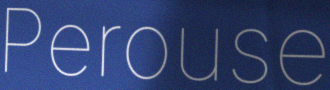
Perouse